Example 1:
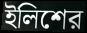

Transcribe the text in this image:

ইলিশের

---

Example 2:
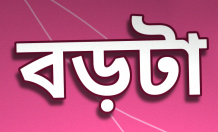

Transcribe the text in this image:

বড়টা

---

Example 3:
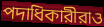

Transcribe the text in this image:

পদাধিকারীরাও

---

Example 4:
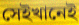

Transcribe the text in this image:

সেইখানেই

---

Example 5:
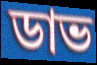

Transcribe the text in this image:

ডাভ